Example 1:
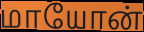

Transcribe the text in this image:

மாயோன்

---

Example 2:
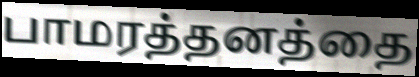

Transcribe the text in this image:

பாமரத்தனத்தை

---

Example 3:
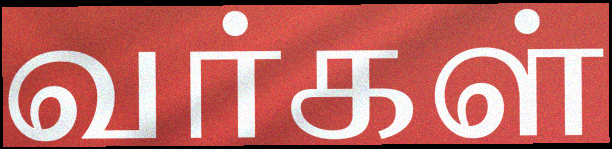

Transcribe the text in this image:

வர்கள்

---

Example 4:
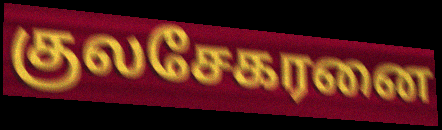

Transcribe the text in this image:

குலசேகரனை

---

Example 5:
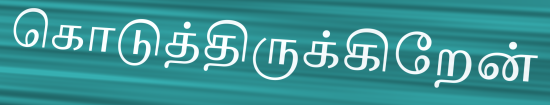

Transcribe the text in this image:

கொடுத்திருக்கிறேன்